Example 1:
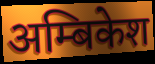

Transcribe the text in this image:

अम्बिकेश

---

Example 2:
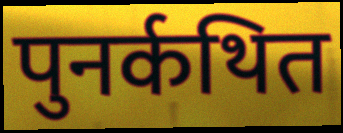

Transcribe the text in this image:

पुनर्कथित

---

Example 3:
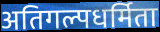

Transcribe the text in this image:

अतिगल्पधर्मिता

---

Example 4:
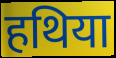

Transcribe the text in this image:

हथिया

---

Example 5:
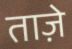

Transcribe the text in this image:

ताज़े